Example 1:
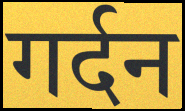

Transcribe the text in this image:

गर्दन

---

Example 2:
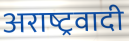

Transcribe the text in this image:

अराष्ट्रवादी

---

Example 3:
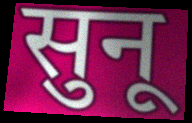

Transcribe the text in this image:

सुनू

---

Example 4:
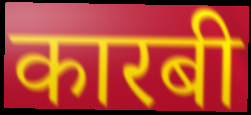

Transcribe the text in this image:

कारबी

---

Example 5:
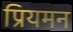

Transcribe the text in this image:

प्रियमन